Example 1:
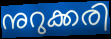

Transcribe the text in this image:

നുറുക്കരി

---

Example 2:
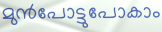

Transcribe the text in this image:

മുൻപോട്ടുപോകാം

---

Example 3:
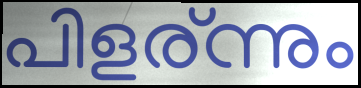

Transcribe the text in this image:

പിളര്ന്നും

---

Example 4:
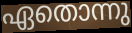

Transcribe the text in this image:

ഏതൊന്നു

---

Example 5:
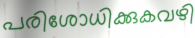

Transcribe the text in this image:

പരിശോധിക്കുകവഴി